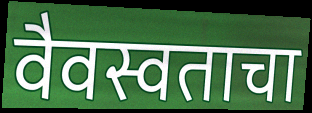
वैवस्वताचा